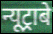
न्यूट्राबे